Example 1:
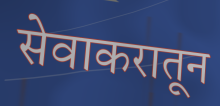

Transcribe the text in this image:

सेवाकरातून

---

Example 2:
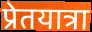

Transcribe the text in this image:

प्रेतयात्रा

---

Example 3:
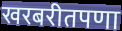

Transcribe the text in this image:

खरबरीतपणा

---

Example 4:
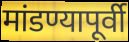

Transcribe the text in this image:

मांडण्यापूर्वी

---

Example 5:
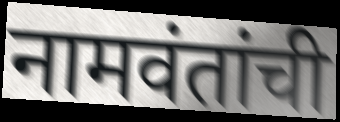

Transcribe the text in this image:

नामवंतांची